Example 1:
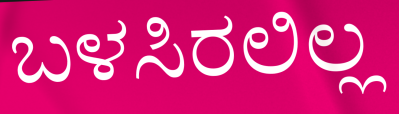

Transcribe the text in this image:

ಬಳಸಿರಲಿಲ್ಲ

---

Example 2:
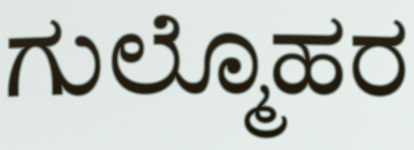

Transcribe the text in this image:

ಗುಲ್ಮೊಹರ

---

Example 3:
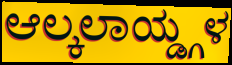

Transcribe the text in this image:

ಆಲ್ಕಲಾಯ್ಡ್ಗಳ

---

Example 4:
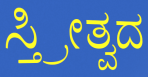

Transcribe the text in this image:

ಸ್ತ್ರೀತ್ವದ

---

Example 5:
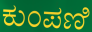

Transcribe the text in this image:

ಕುಂಪಣಿ